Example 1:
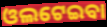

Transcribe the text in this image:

ଓଲଟେଇବା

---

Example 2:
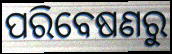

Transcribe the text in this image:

ପରିବେଷଣରୁ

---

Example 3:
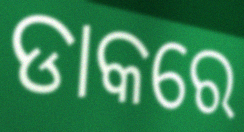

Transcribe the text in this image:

ଡାକରେ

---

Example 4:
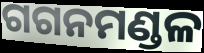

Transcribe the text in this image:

ଗଗନମଣ୍ଡଳ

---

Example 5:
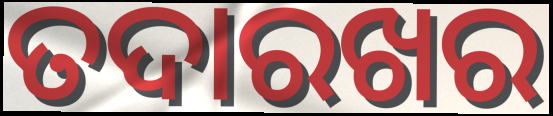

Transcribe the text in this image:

ତଦାରଖର